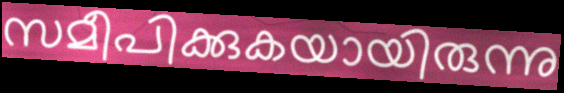
സമീപിക്കുകയായിരുന്നു